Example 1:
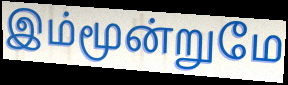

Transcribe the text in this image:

இம்மூன்றுமே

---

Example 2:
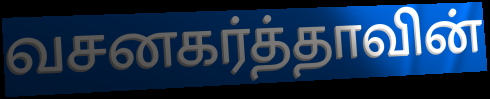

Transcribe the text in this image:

வசனகர்த்தாவின்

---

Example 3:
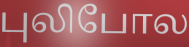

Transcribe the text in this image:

புலிபோல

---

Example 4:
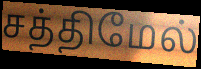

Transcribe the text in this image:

சத்திமேல்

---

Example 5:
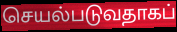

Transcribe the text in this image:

செயல்படுவதாகப்